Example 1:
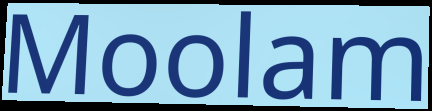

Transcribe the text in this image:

Moolam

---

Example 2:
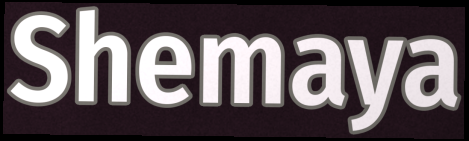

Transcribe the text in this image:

Shemaya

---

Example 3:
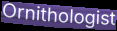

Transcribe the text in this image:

Ornithologist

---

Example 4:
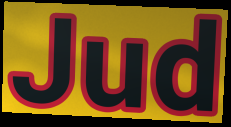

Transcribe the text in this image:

Jud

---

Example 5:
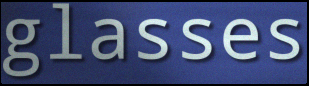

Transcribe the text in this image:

glasses